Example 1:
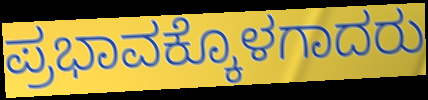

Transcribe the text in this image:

ಪ್ರಭಾವಕ್ಕೊಳಗಾದರು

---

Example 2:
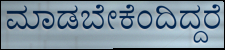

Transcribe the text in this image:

ಮಾಡಬೇಕೆಂದಿದ್ದರೆ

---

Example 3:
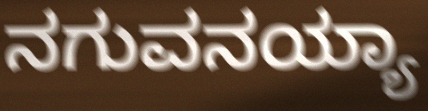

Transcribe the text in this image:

ನಗುವನಯ್ಯಾ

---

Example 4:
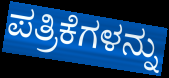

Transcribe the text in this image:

ಪತ್ರಿಕೆಗಳನ್ನು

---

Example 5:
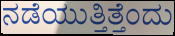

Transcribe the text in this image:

ನಡೆಯುತ್ತಿತ್ತೆಂದು